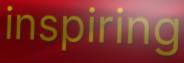
inspiring